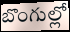
బొంగుల్లో